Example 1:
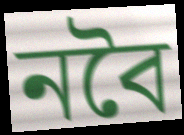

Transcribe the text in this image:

নবৈ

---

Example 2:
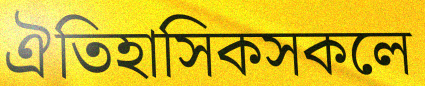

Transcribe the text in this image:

ঐতিহাসিকসকলে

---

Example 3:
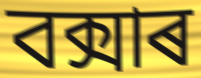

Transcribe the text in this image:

বক্সাৰ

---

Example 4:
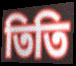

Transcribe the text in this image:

তিতি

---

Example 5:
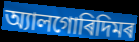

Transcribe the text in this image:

অ্যালগোৰিদিমৰ